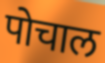
पोचाल